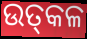
ଉତ୍‌କଳ